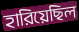
হারিয়েছিল